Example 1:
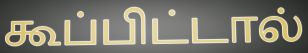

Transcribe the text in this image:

கூப்பிட்டால்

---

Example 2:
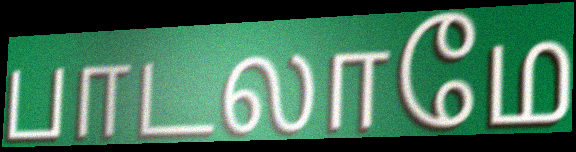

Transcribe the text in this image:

பாடலாமே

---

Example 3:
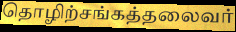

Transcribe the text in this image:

தொழிற்சங்கத்தலைவர்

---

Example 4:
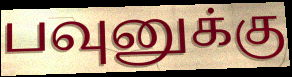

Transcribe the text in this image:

பவுனுக்கு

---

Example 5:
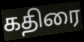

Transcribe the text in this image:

கதிரை